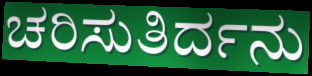
ಚರಿಸುತಿರ್ದನು